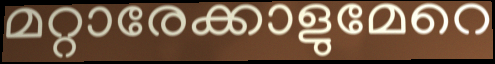
മറ്റാരേക്കാളുമേറെ